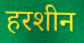
हरशीन